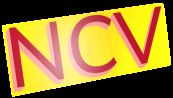
NCV